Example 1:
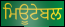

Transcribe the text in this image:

ਮਿਊਟੇਬਲ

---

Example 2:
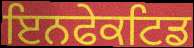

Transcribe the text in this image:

ਇਨਫੇਕਟਿਡ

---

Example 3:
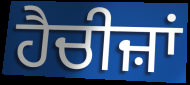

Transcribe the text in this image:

ਹੈਚੀਜ਼ਾਂ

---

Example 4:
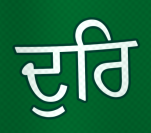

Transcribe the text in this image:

ਦੁਰਿ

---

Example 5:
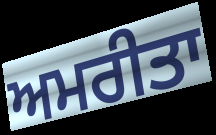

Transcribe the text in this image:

ਅਮਰੀਤਾ